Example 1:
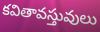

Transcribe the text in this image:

కవితావస్తువులు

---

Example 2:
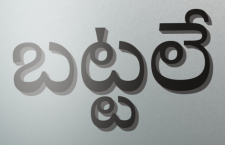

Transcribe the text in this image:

బట్టలే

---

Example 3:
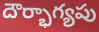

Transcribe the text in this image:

దౌర్భాగ్యపు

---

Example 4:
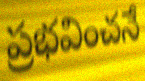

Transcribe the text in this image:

ప్రభవించనే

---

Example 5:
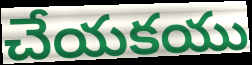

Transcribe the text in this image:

చేయకయు